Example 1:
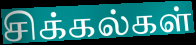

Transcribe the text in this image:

சிக்கல்கள்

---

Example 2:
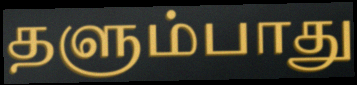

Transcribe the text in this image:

தளும்பாது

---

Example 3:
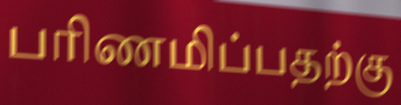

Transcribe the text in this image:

பரிணமிப்பதற்கு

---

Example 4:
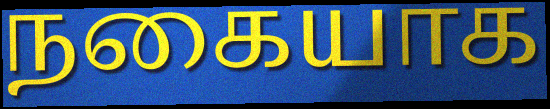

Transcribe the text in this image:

நகையாக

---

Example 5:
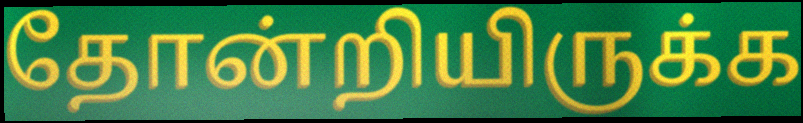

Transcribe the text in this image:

தோன்றியிருக்க